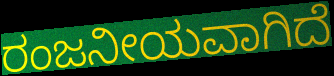
ರಂಜನೀಯವಾಗಿದೆ